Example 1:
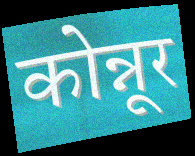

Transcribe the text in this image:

कोन्नूर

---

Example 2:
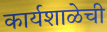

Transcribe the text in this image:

कार्यशाळेची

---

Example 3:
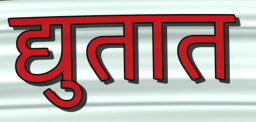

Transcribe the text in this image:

द्युतात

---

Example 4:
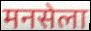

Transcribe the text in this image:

मनसेला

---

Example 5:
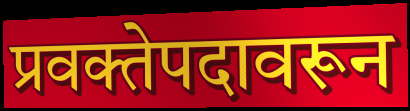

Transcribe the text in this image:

प्रवक्तेपदावरून